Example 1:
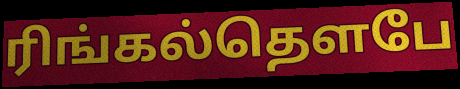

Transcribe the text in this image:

ரிங்கல்தௌபே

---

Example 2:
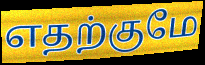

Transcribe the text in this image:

எதற்குமே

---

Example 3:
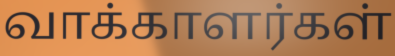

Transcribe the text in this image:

வாக்காளர்கள்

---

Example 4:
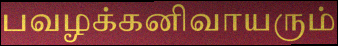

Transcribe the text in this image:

பவழக்கனிவாயரும்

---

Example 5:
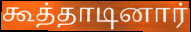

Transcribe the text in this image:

கூத்தாடினார்